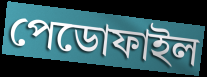
পেডোফাইল